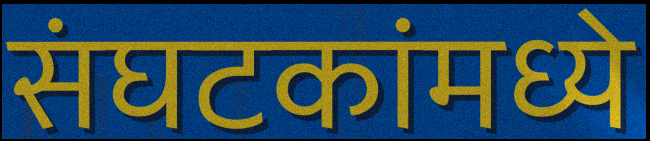
संघटकांमध्ये